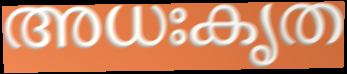
അധഃകൃത